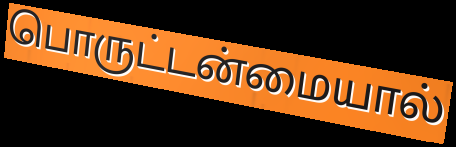
பொருட்டன்மையால்